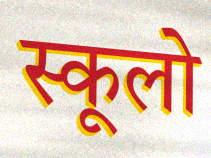
स्कूलो